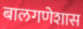
बालगणेशास